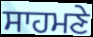
ਸਾਹਮਣੇ